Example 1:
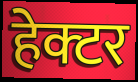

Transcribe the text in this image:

हेक्‍टर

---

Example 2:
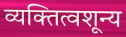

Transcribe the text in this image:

व्यक्तित्वशून्य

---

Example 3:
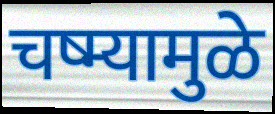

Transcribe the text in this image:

चष्म्यामुळे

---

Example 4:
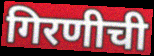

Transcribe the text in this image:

गिरणीची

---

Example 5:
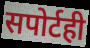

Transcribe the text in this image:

सपोर्टही